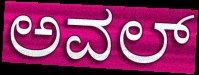
ಅವಲ್